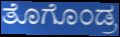
ತೊಗೊಂಡ್ರ